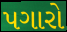
પગારો